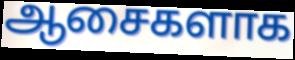
ஆசைகளாக